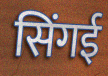
सिंगई